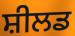
ਸ਼ੀਲਡ